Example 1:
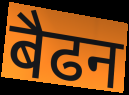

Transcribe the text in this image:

बैढन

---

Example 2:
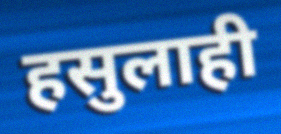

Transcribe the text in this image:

हसुलाही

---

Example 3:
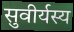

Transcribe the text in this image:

सुवीर्यस्य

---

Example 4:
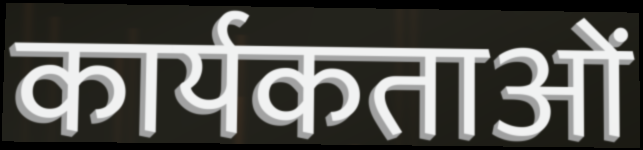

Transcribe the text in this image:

कार्यकताओं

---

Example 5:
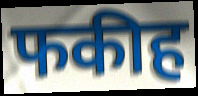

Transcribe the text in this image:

फकीह